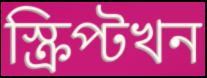
স্ক্ৰিপ্টখন